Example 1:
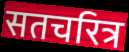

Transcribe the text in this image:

सतचरित्र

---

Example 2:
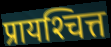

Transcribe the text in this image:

प्रायश्चित्त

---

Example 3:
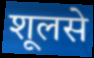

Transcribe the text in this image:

शूलसे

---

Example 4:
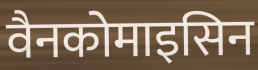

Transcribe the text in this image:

वैनकोमाइसिन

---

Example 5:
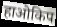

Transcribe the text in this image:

हाओकिप